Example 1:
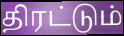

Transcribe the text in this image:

திரட்டும்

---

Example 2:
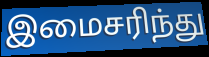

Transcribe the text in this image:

இமைசரிந்து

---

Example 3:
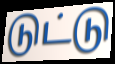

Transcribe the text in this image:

டுட்டு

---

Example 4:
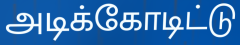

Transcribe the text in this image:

அடிக்கோடிட்டு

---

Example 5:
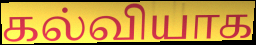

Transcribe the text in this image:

கல்வியாக